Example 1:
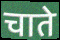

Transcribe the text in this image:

चाते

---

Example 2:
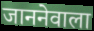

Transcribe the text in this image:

जाननेवाला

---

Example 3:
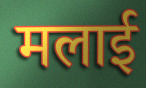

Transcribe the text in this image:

मलाई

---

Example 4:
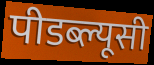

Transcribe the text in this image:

पीडब्ल्यूसी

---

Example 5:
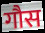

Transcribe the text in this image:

गौस